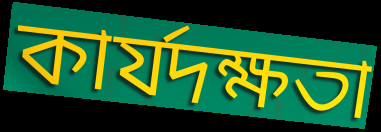
কাৰ্যদক্ষতা